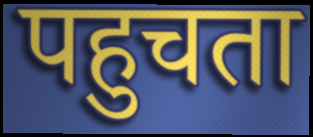
पहुचता